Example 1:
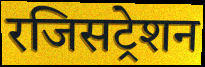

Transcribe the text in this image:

रजिसट्रेशन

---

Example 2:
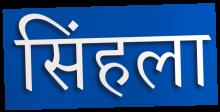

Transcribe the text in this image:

सिंहला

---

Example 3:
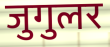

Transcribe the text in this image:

जुगुलर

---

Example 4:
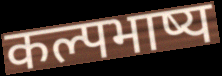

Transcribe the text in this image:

कल्पभाष्य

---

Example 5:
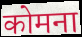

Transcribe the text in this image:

कोमना